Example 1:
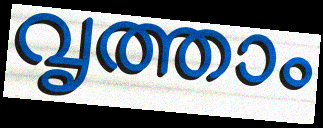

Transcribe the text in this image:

വൃത്താം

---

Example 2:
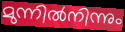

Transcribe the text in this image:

മുന്നിൽനിന്നും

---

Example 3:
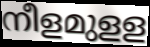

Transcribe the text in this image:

നീളമുളള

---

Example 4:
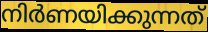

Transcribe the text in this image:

നിർണയിക്കുന്നത്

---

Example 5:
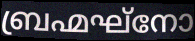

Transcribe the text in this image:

ബ്രഹ്മഘ്നോ